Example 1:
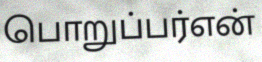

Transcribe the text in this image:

பொறுப்பர்என்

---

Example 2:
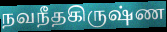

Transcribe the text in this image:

நவநீதகிருஷ்ண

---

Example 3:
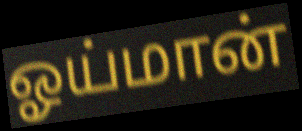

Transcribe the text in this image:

ஓய்மான்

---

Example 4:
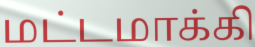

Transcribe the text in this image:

மட்டமாக்கி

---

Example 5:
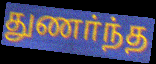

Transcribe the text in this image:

துணர்ந்த